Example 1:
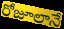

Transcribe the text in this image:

రోజూలానే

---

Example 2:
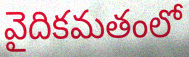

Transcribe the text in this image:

వైదికమతంలో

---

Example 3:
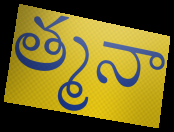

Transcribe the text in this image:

త్మనా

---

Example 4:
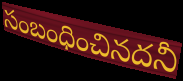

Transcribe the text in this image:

సంబంధించినదనీ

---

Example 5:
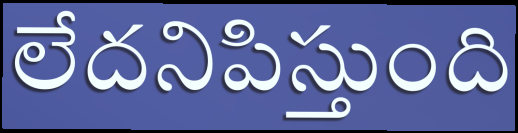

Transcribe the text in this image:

లేదనిపిస్తుంది